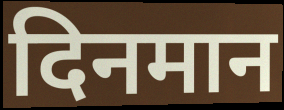
दिनमान